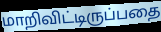
மாறிவிட்டிருப்பதை